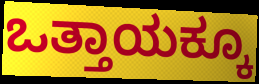
ಒತ್ತಾಯಕ್ಕೂ